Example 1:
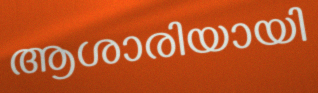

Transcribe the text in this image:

ആശാരിയായി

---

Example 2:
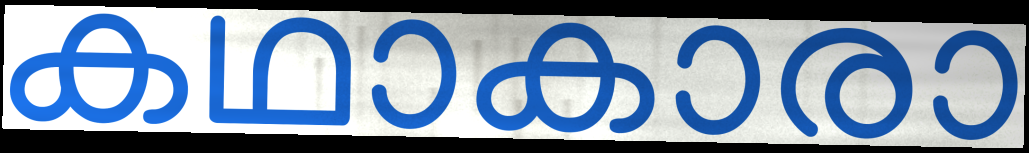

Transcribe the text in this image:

കഥാകാരാ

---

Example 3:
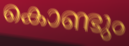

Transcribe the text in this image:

കൊണ്ടും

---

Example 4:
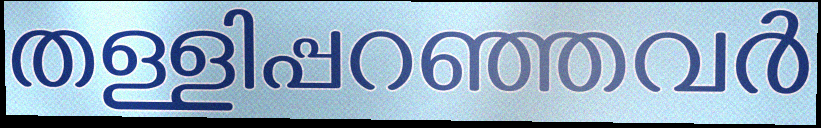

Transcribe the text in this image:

തള്ളിപ്പറഞ്ഞവർ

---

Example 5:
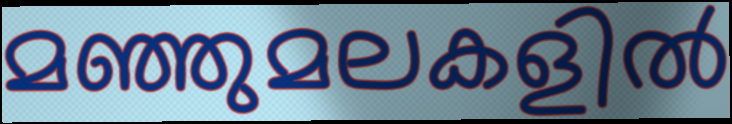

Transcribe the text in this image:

മഞ്ഞുമലകളിൽ